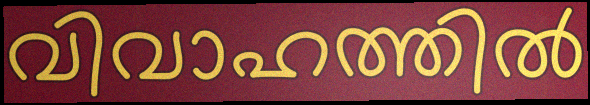
വിവാഹത്തിൽ